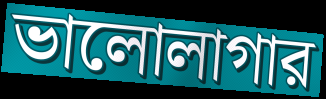
ভালোলাগার